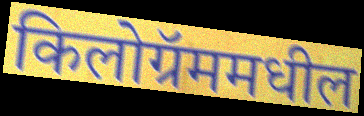
किलोग्रॅममधील